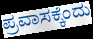
ಪ್ರವಾಸಕ್ಕೆಂದು